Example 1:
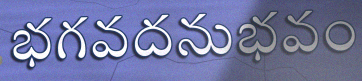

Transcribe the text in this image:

భగవదనుభవం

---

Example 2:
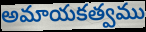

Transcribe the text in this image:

అమాయకత్వము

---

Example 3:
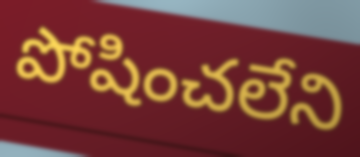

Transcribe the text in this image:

పోషించలేని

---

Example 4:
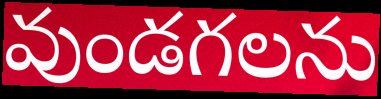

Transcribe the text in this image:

వుండగలను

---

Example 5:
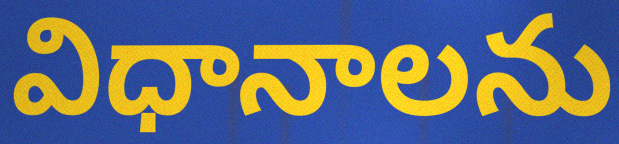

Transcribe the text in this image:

విధానాలను